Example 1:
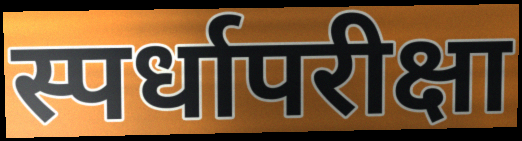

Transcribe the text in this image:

स्पर्धापरीक्षा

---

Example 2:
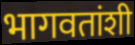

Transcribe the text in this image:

भागवतांशी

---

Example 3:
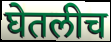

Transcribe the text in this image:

घेतलीच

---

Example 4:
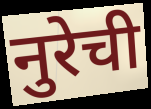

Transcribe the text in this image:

नुरेची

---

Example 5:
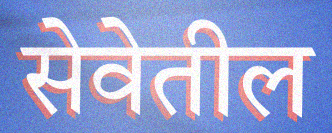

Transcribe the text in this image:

सेवेतील